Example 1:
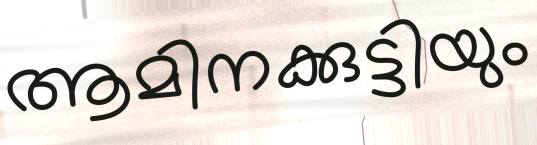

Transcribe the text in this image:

ആമിനക്കുട്ടിയും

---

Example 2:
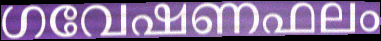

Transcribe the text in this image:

ഗവേഷണഫലം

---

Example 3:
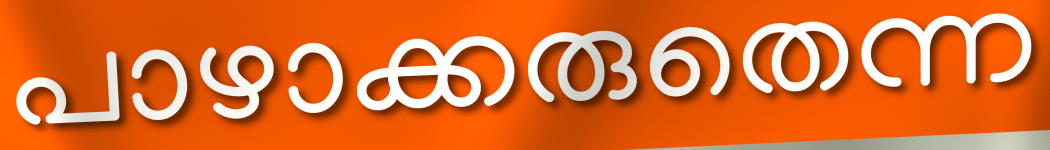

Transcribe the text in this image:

പാഴാക്കരുതെന്ന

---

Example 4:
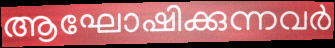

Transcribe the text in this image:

ആഘോഷിക്കുന്നവർ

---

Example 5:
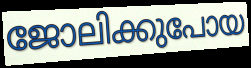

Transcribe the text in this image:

ജോലിക്കുപോയ